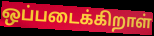
ஒப்படைக்கிறாள்